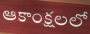
ఆకాంక్షలలో